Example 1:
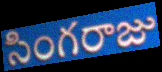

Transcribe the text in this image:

సింగరాజు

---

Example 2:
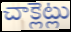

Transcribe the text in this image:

చాక్లెట్లు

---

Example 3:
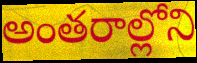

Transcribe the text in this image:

అంతరాల్లోని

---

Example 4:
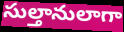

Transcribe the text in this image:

సుల్తానులాగా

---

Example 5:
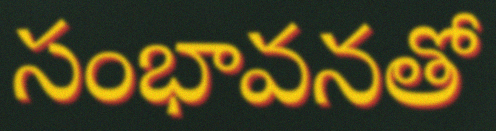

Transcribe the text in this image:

సంభావనతో